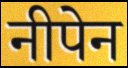
नीपेन